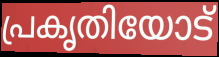
പ്രകൃതിയോട്